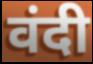
वंदी